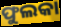
ଫୁଲକା